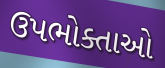
ઉપભોક્તાઓ